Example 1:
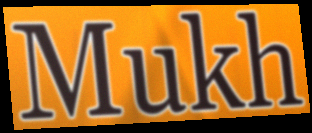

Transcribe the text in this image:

Mukh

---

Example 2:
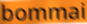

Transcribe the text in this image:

bommai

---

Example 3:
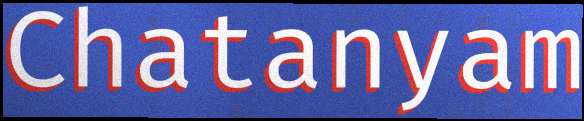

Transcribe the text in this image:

Chatanyam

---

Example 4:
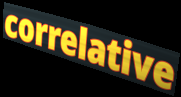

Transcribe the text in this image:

correlative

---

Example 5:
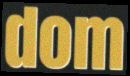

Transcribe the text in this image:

dom